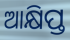
ଆକ୍ଷିପ୍ତ